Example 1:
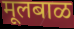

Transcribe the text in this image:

मूलबाळ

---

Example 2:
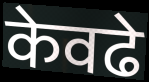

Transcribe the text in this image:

केवढे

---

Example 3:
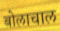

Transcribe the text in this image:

बोलाचाल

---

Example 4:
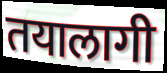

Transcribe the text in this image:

तयालागी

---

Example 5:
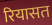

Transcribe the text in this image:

रियासत